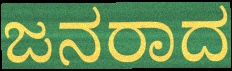
ಜನರಾದ